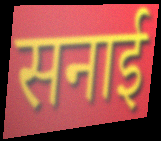
सनाई